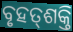
ବୃହତ୍‌ଶକ୍ତି